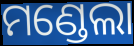
ମଣ୍ଡେଲା